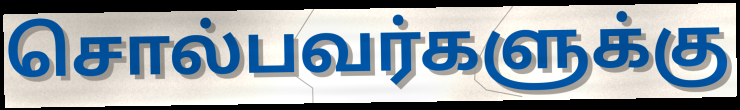
சொல்பவர்களுக்கு